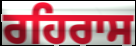
ਰਹਿਰਾਸ